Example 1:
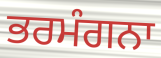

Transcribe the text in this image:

ਭਰਮੰਗਨਾ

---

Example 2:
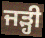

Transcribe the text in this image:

ਜੜ੍ਹੀ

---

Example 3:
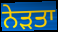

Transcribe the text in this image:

ਨੇੜਤਾ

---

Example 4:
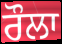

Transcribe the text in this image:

ਰੌਲਾ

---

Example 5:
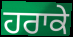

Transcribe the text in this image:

ਹਰਾਕੇ